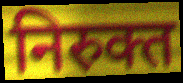
निरुक्त